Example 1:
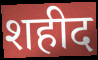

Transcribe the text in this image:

शहीद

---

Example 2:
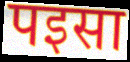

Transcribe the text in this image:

पइसा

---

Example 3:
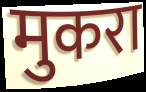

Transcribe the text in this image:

मुकरा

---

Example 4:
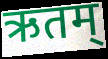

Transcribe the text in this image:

ऋतम्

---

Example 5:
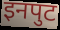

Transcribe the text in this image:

इनपुट